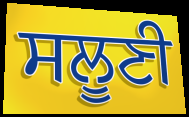
ਸਲੂਣੀ